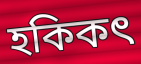
হকিকৎ